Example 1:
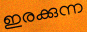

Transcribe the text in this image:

ഇരക്കുന്ന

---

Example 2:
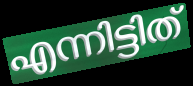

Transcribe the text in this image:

എന്നിട്ടിത്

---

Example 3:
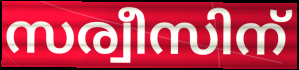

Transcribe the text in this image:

സര്വീസിന്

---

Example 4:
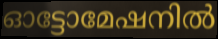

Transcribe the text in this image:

ഓട്ടോമേഷനിൽ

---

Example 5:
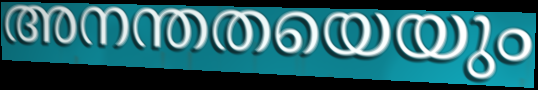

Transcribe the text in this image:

അനന്തതയെയും